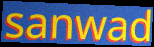
sanwad